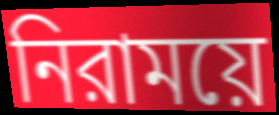
নিরাময়ে